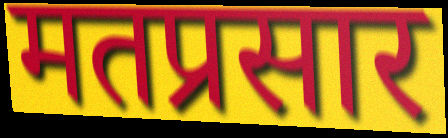
मतप्रसार